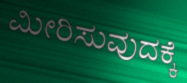
ಮೀರಿಸುವುದಕ್ಕೆ